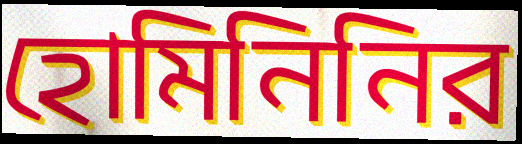
হোমিনিনির